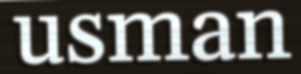
usman